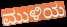
ಮುಳಿಯ